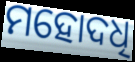
ମହୋଦଧି